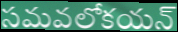
సమవలోకయన్